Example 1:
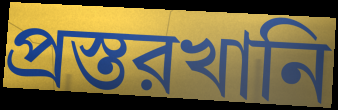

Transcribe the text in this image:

প্রস্তরখানি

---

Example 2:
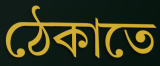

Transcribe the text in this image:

ঠেকাতে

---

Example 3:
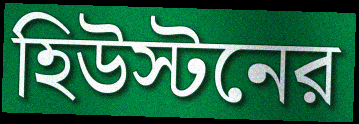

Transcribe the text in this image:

হিউস্টনের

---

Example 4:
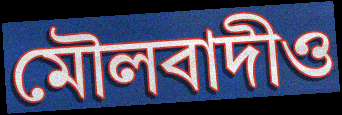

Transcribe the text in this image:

মৌলবাদীও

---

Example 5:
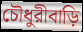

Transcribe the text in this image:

চৌধুরীবাড়ি